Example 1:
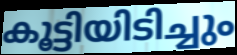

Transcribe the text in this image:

കൂട്ടിയിടിച്ചും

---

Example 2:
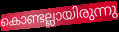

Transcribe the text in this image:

കൊണ്ടല്ലായിരുന്നു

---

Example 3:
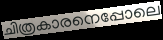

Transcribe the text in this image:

ചിത്രകാരനെപ്പോലെ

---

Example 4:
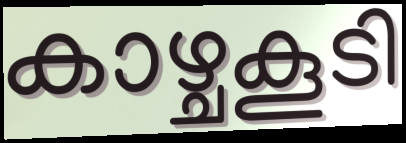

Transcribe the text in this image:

കാഴ്ചകൂടി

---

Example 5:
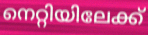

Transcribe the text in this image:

നെറ്റിയിലേക്ക്